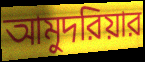
আমুদরিয়ার